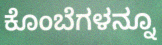
ಕೊಂಬೆಗಳನ್ನೂ